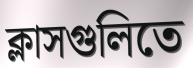
ক্লাসগুলিতে